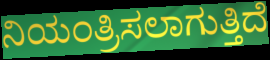
ನಿಯಂತ್ರಿಸಲಾಗುತ್ತಿದೆ